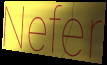
Nefer